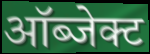
ऑब्‍जेक्‍ट